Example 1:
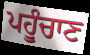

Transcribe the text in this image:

ਪਹੂੰਚਾਣ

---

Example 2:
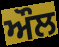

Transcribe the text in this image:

ਔਲ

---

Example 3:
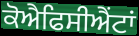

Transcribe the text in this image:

ਕੋਐਫਿਸੀਐਂਟਾਂ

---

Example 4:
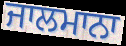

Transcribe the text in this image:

ਜਾਲਮਾਨਾ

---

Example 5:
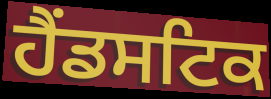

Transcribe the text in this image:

ਹੈਂਡਸਟਿਕ